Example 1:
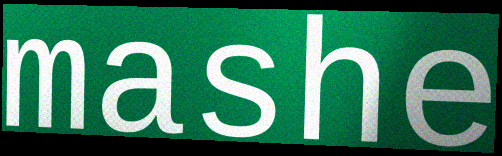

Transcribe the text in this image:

mashe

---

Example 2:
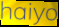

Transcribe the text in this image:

haiyo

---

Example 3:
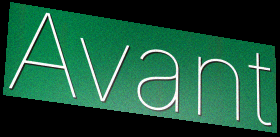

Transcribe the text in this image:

Avant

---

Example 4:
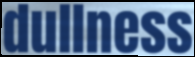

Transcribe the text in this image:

dullness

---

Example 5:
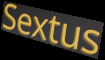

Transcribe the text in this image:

Sextus